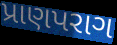
પ્રાણપરાગ